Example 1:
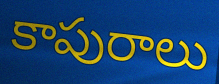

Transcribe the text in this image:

కాపురాలు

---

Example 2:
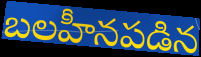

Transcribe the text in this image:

బలహీనపడిన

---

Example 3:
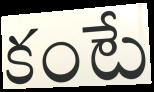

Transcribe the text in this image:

కంటే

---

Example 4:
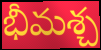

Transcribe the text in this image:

భీమశ్చ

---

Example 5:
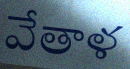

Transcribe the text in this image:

వేతాళ